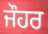
ਜੌਹਰ